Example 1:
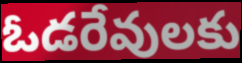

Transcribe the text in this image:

ఓడరేవులకు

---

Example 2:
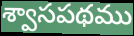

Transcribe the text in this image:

శ్వాసపథము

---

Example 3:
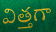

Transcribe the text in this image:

విత్తగా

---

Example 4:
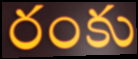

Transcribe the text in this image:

రంకు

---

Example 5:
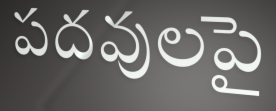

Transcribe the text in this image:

పదవులపై